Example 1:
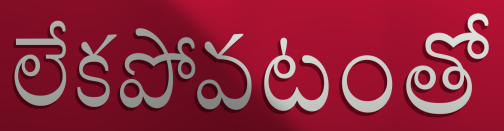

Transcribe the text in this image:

లేకపోవటంతో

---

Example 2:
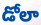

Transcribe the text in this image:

డోలా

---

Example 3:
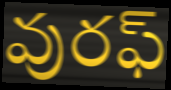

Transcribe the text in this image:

వురఫ్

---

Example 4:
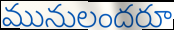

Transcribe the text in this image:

మునులందరూ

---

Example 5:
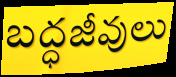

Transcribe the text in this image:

బద్ధజీవులు